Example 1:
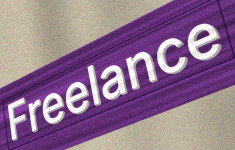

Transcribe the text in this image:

Freelance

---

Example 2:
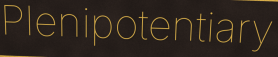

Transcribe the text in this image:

Plenipotentiary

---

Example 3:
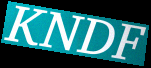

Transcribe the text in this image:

KNDF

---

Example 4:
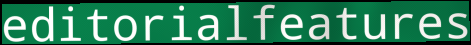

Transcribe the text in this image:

editorialfeatures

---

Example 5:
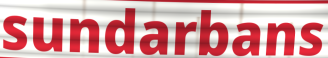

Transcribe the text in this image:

sundarbans